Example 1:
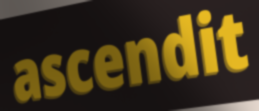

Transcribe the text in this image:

ascendit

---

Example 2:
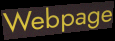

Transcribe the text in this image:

Webpage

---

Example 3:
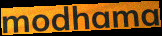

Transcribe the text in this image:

modhama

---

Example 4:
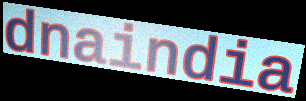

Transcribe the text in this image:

dnaindia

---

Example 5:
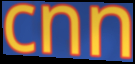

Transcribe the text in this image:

cnn